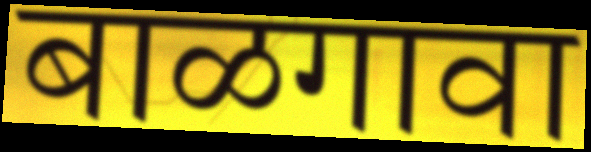
बाळगावा